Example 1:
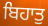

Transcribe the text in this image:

ਬਿਹਾਤੁ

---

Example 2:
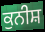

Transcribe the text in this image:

ਕੁਨੀਸ਼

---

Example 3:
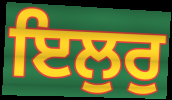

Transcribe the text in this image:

ਇਲੁਰੁ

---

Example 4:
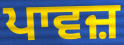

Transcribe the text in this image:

ਪਾਵਜ਼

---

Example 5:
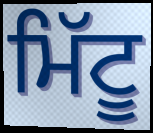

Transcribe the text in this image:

ਮਿੱਟੂ